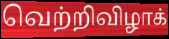
வெற்றிவிழாக்